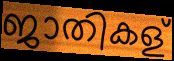
ജാതികള്